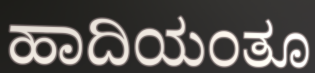
ಹಾದಿಯಂತೂ